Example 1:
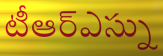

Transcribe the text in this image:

టీఆర్ఎస్ను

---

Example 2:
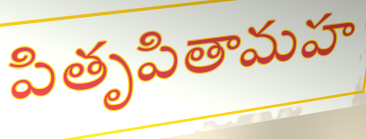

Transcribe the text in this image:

పితృపితామహ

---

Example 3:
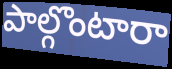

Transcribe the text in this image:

పాల్గొంటారా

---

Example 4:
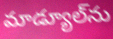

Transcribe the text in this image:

మాడ్యూల్‌ను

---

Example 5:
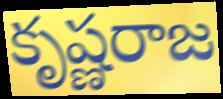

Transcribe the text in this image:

కృష్ణరాజ